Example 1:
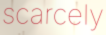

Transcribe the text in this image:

scarcely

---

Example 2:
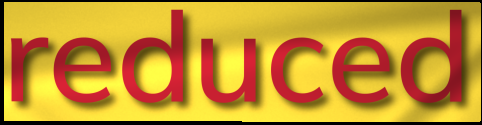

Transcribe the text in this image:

reduced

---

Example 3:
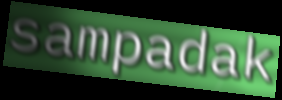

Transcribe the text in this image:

sampadak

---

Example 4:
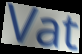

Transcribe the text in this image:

Vat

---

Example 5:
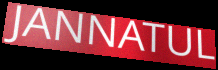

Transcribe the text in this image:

JANNATUL